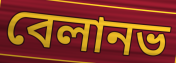
বেলানভ